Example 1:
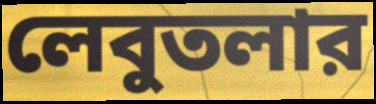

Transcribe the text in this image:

লেবুতলার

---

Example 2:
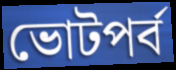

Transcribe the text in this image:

ভোটপর্ব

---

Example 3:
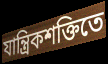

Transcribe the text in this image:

যান্ত্রিকশক্তিতে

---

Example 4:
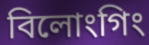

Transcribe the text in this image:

বিলোংগিং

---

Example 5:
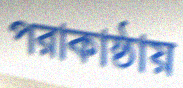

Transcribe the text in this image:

পরাকাষ্ঠায়